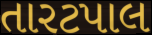
તારટપાલ